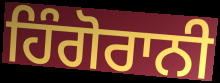
ਹਿੰਗੋਰਾਨੀ